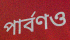
পার্বণও